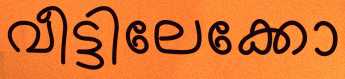
വീട്ടിലേക്കോ